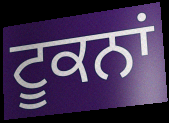
ਟੂਕਨਾਂ